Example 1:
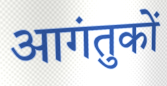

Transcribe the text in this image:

आगंतुकों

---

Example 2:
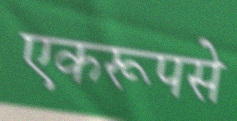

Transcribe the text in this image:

एकरूपसे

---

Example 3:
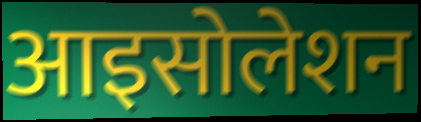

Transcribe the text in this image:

आइसोलेशन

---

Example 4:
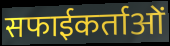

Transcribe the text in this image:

सफाईकर्ताओं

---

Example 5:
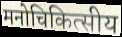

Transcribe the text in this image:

मनोचिकित्सीय